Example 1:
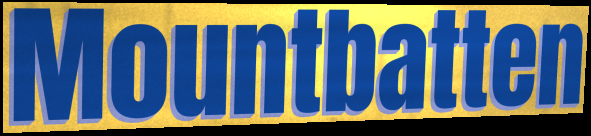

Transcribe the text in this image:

Mountbatten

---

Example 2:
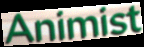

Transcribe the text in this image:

Animist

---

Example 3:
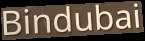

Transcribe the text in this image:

Bindubai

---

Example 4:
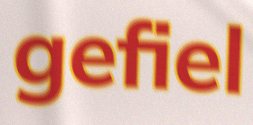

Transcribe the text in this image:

gefiel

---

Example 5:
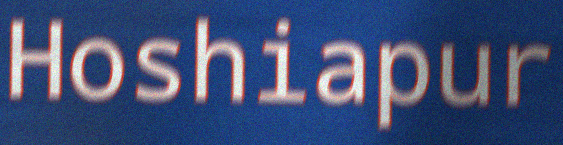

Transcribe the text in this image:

Hoshiapur